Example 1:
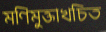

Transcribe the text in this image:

মণিমুক্তাখচিত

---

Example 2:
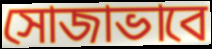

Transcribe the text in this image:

সোজাভাবে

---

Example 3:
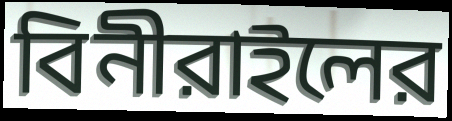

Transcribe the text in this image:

বিনীরাইলের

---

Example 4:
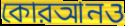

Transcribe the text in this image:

কোরআনও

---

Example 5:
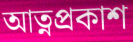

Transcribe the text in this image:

আত্নপ্রকাশ